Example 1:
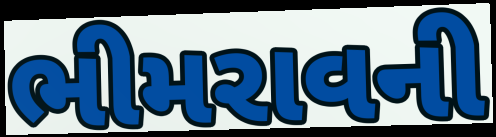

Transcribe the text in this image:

ભીમરાવની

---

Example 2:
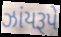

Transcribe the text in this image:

ઝાંયરૂપે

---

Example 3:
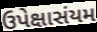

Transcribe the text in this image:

ઉપેક્ષાસંયમ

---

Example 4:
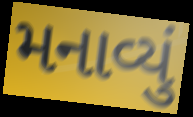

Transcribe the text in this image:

મનાવ્યું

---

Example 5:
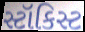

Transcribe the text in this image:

સ્ટૉકિસ્ટ